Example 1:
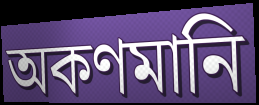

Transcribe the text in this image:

অকণমানি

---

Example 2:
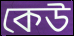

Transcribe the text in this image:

কেউ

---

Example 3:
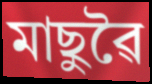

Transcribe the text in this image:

মাছুৱৈ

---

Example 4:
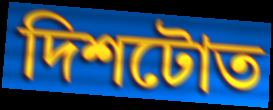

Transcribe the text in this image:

দিশটোত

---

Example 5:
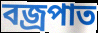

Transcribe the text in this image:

বজ্ৰপাত